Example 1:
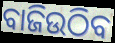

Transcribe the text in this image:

ବାଜିଉଠିବ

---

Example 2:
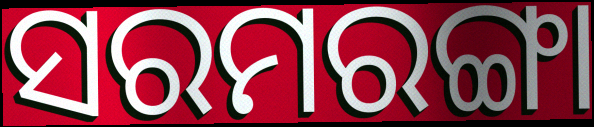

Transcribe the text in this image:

ସରମରଙ୍ଗା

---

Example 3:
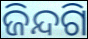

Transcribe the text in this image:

ଜିନ୍ଦଗି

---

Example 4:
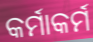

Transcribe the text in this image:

କର୍ମାକର୍ମ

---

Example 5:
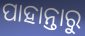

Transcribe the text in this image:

ପାହାନ୍ତାରୁ